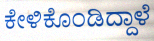
ಕೇಳಿಕೊಂಡಿದ್ದಾಳೆ